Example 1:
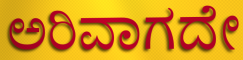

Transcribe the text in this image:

ಅರಿವಾಗದೇ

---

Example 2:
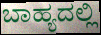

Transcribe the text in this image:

ಬಾಹ್ಯದಲ್ಲಿ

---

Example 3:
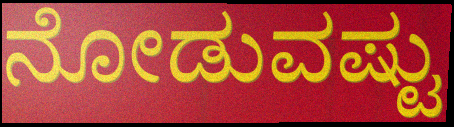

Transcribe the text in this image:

ನೋಡುವಷ್ಟು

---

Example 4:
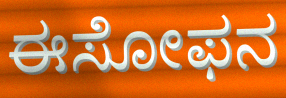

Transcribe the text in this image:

ಈಸೋಫನ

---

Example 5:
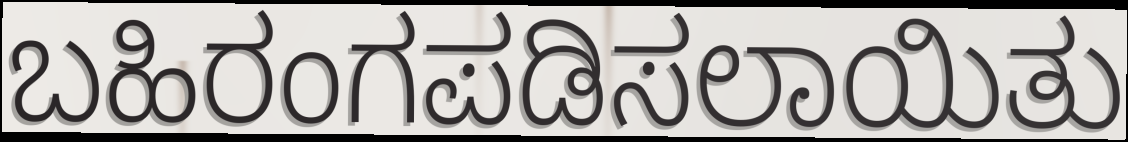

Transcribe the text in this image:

ಬಹಿರಂಗಪಡಿಸಲಾಯಿತು